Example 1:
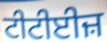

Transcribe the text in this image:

ਟੀਟੀਈਜ਼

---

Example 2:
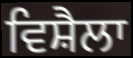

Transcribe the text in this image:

ਵਿਸ਼ੈਲਾ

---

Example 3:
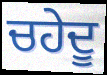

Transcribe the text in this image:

ਚਹੇਦੂ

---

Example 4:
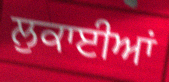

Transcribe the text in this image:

ਲੁਕਾਈਆਂ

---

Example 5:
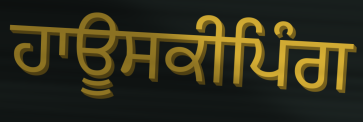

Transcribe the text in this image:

ਹਾਊਸਕੀਪਿੰਗ